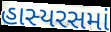
હાસ્યરસમાં